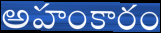
అహంకారం